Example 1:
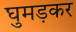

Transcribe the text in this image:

घुमड़कर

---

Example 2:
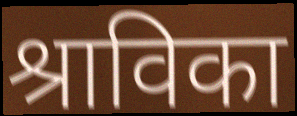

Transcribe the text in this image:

श्राविका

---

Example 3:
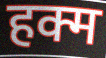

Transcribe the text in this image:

हक्म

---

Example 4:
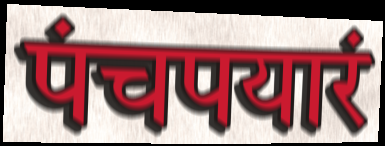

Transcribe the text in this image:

पंचपयारं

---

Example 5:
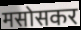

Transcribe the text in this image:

मसोसकर